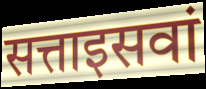
सत्ताइसवां